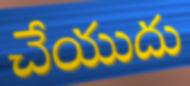
చేయుదు